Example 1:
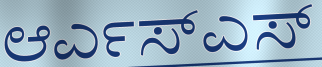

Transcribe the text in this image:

ಆರ್ಎಸ್ಎಸ್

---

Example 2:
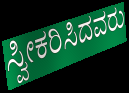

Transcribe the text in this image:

ಸ್ವೀಕರಿಸಿದವರು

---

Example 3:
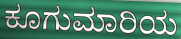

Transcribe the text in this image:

ಕೂಗುಮಾರಿಯ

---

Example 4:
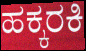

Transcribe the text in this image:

ಹಕ್ಕರಕಿ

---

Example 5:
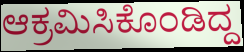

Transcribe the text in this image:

ಆಕ್ರಮಿಸಿಕೊಂಡಿದ್ದ